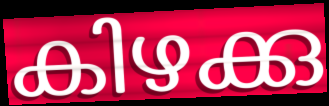
കിഴക്കു